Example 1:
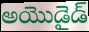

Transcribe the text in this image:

అయొడైడ్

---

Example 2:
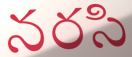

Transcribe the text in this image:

నరసి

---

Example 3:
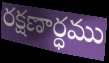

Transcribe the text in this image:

రక్షణార్ధము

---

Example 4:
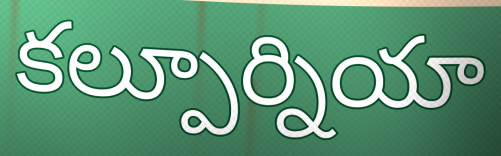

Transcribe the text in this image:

కల్పూర్నియా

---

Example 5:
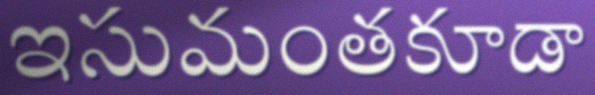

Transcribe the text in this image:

ఇసుమంతకూడా